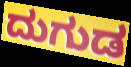
ದುಗುಡ